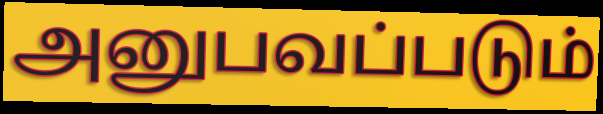
அனுபவப்படும்